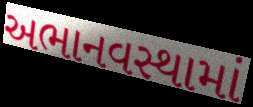
અભાનવસ્થામાં